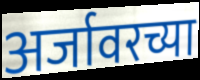
अर्जावरच्या